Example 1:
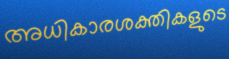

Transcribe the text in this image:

അധികാരശക്തികളുടെ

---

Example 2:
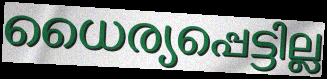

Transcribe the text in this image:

ധൈര്യപ്പെട്ടില്ല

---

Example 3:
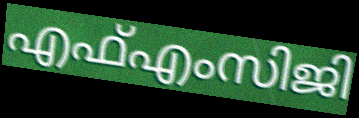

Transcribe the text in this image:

എഫ്എംസിജി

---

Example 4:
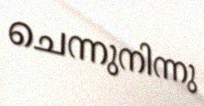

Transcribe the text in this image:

ചെന്നുനിന്നു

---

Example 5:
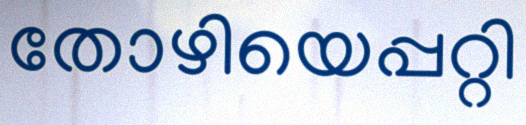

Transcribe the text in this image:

തോഴിയെപ്പറ്റി